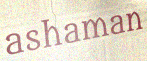
ashaman